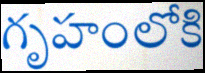
గృహంలోకి